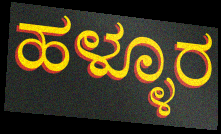
ಹಳ್ಳೂರ